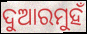
ଦୁଆରମୁହଁ